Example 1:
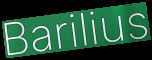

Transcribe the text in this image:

Barilius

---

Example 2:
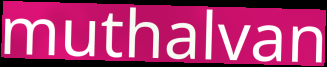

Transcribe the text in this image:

muthalvan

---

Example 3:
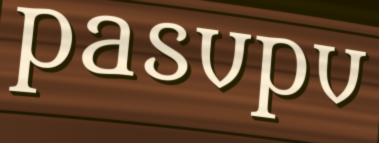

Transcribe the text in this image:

pasupu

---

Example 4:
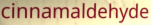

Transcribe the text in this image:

cinnamaldehyde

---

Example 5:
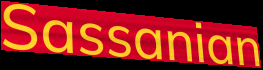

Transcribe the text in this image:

Sassanian